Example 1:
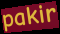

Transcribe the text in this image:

pakir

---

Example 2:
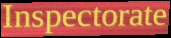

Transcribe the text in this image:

Inspectorate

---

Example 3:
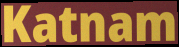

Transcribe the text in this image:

Katnam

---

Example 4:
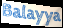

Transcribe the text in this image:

Balayya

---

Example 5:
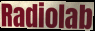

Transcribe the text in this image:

Radiolab